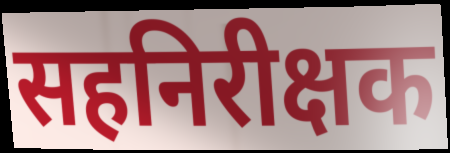
सहनिरीक्षक